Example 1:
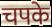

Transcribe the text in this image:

चपके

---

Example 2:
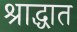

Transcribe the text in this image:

श्राद्धात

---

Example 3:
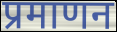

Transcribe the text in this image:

प्रमाणन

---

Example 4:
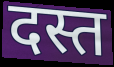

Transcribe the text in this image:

दस्त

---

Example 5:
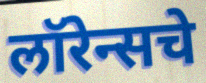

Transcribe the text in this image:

लॉरेन्सचे